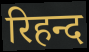
रिहन्द